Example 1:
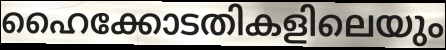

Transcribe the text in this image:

ഹൈക്കോടതികളിലെയും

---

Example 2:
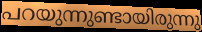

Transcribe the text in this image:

പറയുന്നുണ്ടായിരുന്നു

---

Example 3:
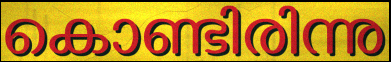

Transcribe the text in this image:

കൊണ്ടിരിന്നു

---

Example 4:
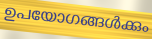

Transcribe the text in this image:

ഉപയോഗങ്ങൾക്കും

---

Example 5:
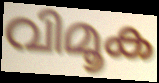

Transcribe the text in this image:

വിമൂക